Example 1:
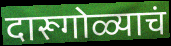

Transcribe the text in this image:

दारूगोळ्याचं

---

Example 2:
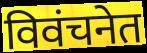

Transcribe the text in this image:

विवंचनेत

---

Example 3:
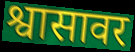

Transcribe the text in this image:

श्वासावर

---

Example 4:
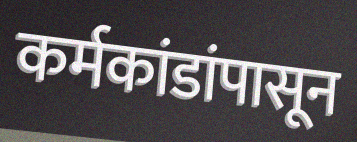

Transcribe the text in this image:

कर्मकांडांपासून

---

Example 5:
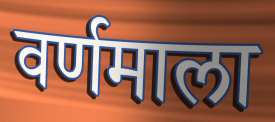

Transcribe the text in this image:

वर्णमाला